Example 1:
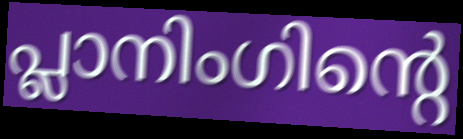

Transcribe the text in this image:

പ്ലാനിംഗിന്റെ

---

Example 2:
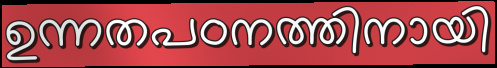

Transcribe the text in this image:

ഉന്നതപഠനത്തിനായി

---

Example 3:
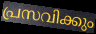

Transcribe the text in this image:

പ്രസവിക്കും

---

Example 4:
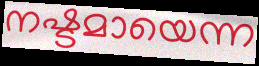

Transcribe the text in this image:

നഷ്ടമായെന്ന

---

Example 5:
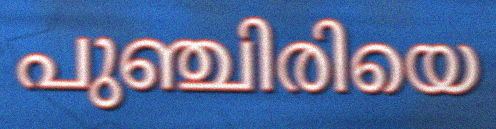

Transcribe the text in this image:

പുഞ്ചിരിയെ